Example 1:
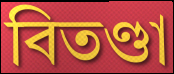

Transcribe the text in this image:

বিতণ্ডা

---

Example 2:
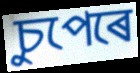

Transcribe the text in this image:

চুপেৰে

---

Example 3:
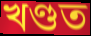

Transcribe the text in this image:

খণ্ডত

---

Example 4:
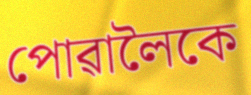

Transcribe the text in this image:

পোৱালৈকে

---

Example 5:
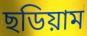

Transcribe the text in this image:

ছডিয়াম